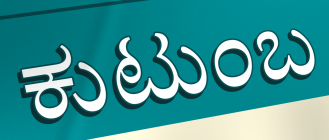
ಕುಟುಂಬ